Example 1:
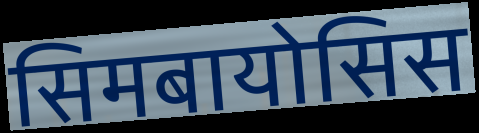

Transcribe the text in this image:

सिमबायोसिस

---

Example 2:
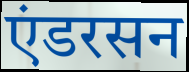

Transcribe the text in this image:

एंडरसन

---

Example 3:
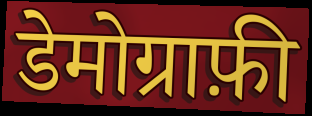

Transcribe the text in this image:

डेमोग्राफ़ी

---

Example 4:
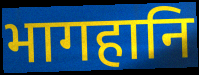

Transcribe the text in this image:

भागहानि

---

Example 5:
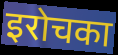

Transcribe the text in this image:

इरोचका